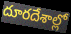
దూరదేశాల్లో